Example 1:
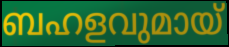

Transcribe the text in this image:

ബഹളവുമായ്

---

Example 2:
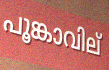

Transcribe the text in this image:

പൂങ്കാവില്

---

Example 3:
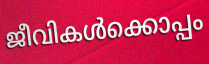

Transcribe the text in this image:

ജീവികൾക്കൊപ്പം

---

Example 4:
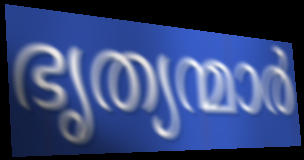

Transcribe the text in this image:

ഭൃത്യന്മാർ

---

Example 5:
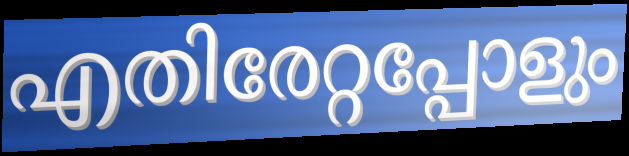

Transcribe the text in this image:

എതിരേറ്റപ്പോളും